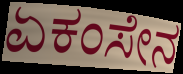
ಏಕಂಸೇನ